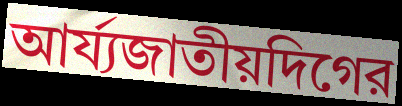
আর্য্যজাতীয়দিগের